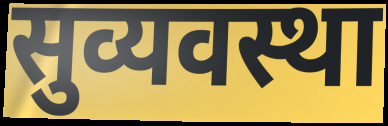
सुव्यवस्था